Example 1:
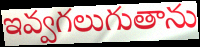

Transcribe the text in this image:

ఇవ్వగలుగుతాను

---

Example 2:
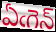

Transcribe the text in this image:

ఏఁగెన్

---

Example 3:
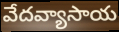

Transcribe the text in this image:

వేదవ్యాసాయ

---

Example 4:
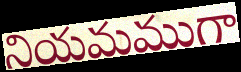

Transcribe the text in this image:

నియమముగా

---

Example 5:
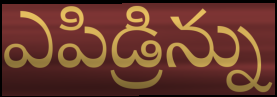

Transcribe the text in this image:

ఎపిడ్రిన్ను